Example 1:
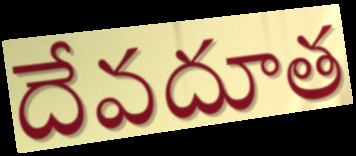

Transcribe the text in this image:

దేవదూత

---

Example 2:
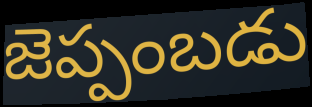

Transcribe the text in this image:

జెప్పంబడు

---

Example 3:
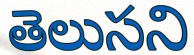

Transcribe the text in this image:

తెలుసని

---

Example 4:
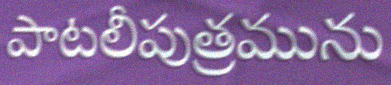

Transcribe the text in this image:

పాటలీపుత్రమును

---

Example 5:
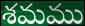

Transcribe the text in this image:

శమము